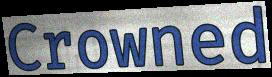
Crowned